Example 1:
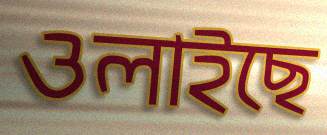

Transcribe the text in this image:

ওলাইছে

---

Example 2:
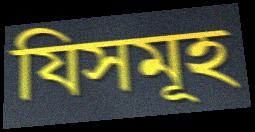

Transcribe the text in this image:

যিসমূহ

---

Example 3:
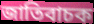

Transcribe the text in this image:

জাতিবাচক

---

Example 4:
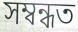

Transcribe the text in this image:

সম্বন্ধত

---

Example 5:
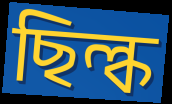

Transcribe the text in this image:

ছিল্ক